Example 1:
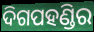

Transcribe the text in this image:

ଦିଗପହଣ୍ଡିର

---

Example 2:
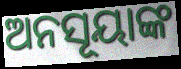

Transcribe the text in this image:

ଅନସୂୟାଙ୍କ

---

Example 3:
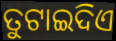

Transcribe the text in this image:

ତୁଟାଇଦିଏ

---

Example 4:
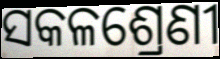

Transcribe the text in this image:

ସକଳଶ୍ରେଣୀ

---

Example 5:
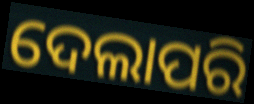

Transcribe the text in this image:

ଦେଲାପରି